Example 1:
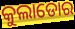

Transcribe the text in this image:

କୁଲାଡୋର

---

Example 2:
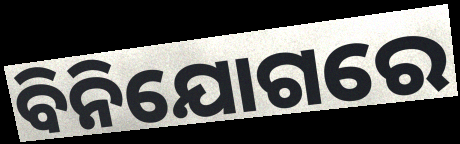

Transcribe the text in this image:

ବିନିଯୋଗରେ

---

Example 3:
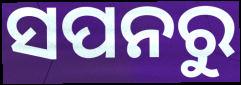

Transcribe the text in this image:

ସପନରୁ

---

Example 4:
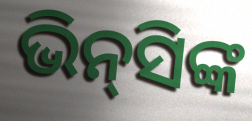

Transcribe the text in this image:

ଭିନ୍‍ସିଙ୍କ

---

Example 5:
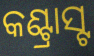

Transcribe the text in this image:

କଣ୍ଟ୍ରାସ୍ଟ